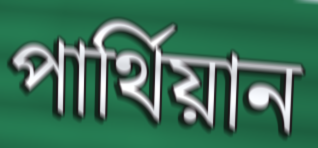
পার্থিয়ান